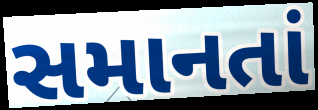
સમાનતાં